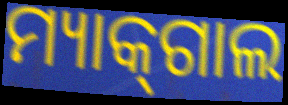
ମ୍ୟାକ୍‌ଗାଲ